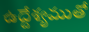
ఉద్దేశ్యముతో